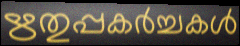
ഋതുപ്പകർച്ചകൾ